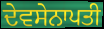
ਦੇਵਸੇਨਾਪਤੀ